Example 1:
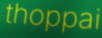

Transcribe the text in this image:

thoppai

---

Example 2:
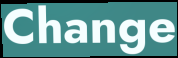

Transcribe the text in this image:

Change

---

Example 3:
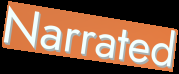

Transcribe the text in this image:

Narrated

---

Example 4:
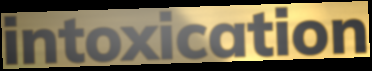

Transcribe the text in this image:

intoxication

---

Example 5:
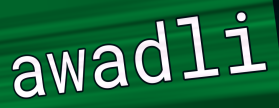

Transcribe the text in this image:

awadli